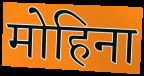
मोहिना